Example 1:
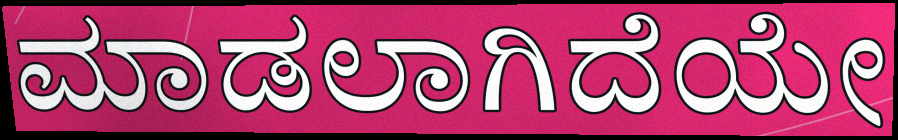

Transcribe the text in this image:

ಮಾಡಲಾಗಿದೆಯೇ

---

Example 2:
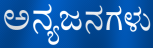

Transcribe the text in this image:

ಅನ್ಯಜನಗಳು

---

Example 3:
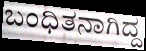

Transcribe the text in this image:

ಬಂಧಿತನಾಗಿದ್ದ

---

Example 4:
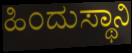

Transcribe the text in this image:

ಹಿಂದುಸ್ಥಾನಿ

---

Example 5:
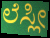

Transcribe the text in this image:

ಲೆಸ್ಲೀ